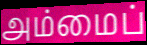
அம்மைப்